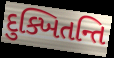
દુક્ખિતન્તિ